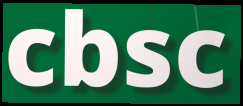
cbsc